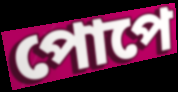
পোপে